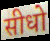
सीधो